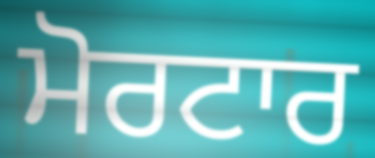
ਮੋਰਟਾਰ